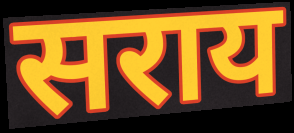
सराय